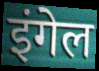
इंगेल